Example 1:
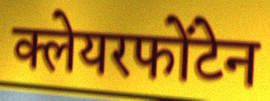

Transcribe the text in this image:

क्लेयरफोंटेन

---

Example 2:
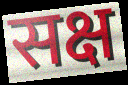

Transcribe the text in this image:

सक्ष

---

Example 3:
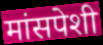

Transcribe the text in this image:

मांसपेशी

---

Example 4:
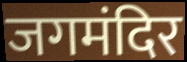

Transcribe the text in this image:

जगमंदिर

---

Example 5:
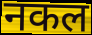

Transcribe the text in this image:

नकल